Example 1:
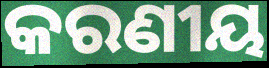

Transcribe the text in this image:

କରଣୀୟ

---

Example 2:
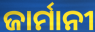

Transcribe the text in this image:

ଜାର୍ମାନୀ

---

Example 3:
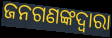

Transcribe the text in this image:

ଜନଗଣଙ୍କଦ୍ୱାରା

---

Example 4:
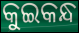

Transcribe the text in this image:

କୁଇକନ୍ଧ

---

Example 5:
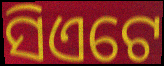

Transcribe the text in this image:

ସିଏଟେ